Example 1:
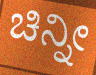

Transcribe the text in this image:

ಚಿನ್ನೀ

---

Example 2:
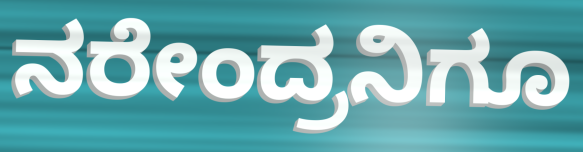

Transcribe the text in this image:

ನರೇಂದ್ರನಿಗೂ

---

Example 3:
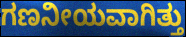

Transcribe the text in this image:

ಗಣನೀಯವಾಗಿತ್ತು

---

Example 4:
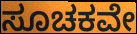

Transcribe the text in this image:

ಸೂಚಕವೇ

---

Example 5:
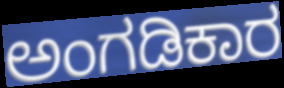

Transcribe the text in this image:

ಅಂಗಡಿಕಾರ